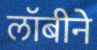
लॉबीने